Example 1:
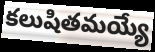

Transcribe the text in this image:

కలుషితమయ్యే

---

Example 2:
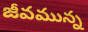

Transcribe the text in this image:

జీవమున్న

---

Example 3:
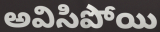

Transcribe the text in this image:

అవిసిపోయి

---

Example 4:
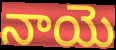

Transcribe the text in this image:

నాయె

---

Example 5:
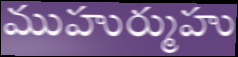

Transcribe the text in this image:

ముహుర్ముహు